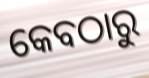
କେବଠାରୁ